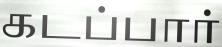
கடப்பார்